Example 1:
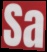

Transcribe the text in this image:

Sa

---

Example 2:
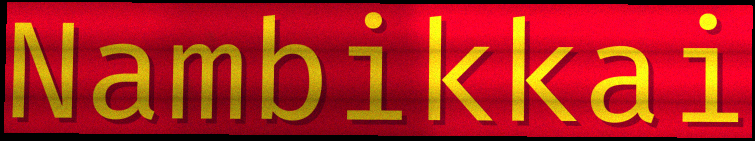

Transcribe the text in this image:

Nambikkai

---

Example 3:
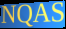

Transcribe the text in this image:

NQAS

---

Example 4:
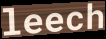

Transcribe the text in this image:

leech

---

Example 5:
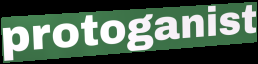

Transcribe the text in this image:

protoganist